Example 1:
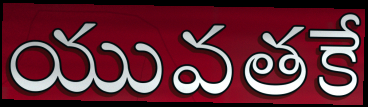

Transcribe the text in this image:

యువతకే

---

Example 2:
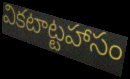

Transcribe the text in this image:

వికటాట్టహాసం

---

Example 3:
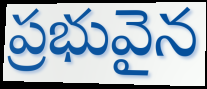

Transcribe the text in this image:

ప్రభువైన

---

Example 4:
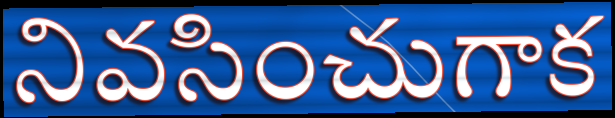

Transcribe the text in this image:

నివసించుగాక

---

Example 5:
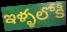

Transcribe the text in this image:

ఇళ్ళలోకీ